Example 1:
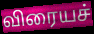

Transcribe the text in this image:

விரையச்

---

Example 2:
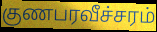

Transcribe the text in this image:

குணபரவீச்சரம்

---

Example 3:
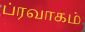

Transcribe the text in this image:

ப்ரவாகம்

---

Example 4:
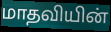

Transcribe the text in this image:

மாதவியின்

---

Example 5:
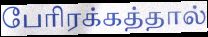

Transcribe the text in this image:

பேரிரக்கத்தால்